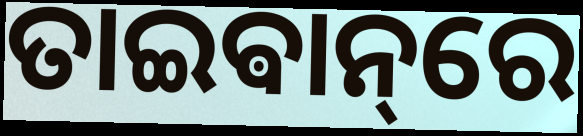
ତାଇଵାନ୍‌ରେ